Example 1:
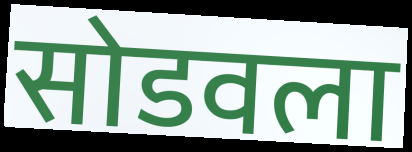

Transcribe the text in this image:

सोडवला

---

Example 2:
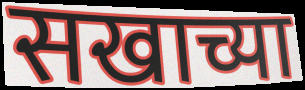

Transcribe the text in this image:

सखाच्या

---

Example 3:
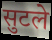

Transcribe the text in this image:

सुटले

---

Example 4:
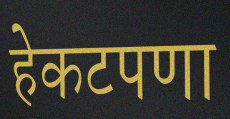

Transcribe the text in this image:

हेकटपणा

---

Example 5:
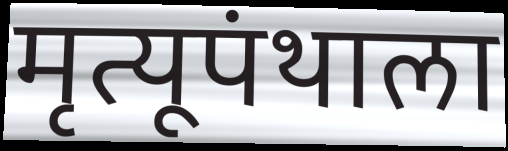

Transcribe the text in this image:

मृत्यूपंथाला